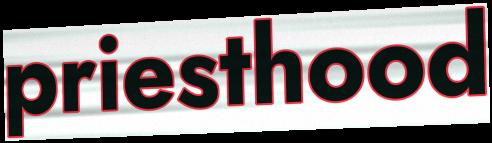
priesthood